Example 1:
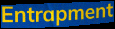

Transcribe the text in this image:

Entrapment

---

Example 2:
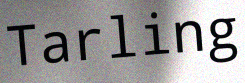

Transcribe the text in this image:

Tarling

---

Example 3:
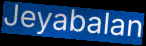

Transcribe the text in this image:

Jeyabalan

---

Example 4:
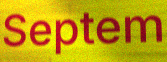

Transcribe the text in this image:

Septem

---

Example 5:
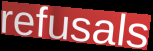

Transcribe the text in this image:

refusals